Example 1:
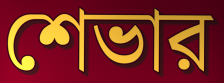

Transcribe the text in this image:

শেভার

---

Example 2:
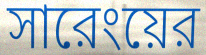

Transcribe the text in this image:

সারেংয়ের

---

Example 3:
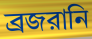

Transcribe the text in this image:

ব্রজরানি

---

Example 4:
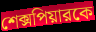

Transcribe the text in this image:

শেক্সপিয়ারকে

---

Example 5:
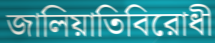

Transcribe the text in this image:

জালিয়াতিবিরোধী